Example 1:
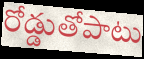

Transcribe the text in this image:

రోడ్డుతోపాటు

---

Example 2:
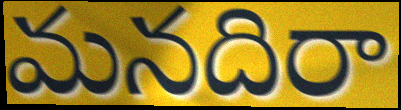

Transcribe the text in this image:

మనదిరా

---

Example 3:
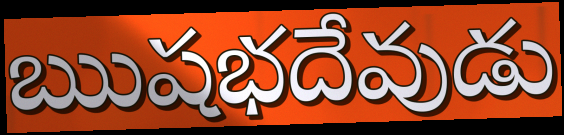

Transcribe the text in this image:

ఋషభదేవుడు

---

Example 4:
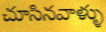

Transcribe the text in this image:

చూసినవాళ్ళు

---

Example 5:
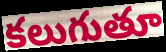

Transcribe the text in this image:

కలుగుతూ